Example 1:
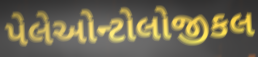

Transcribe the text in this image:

પેલેઓન્ટોલોજીકલ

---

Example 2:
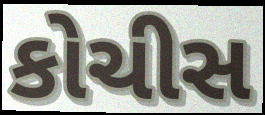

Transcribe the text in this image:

કોચીસ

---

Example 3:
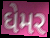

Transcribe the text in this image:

ઘેમર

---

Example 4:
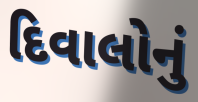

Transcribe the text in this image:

દિવાલોનું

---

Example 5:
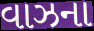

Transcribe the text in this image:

વાઝના